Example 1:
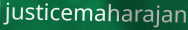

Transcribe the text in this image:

justicemaharajan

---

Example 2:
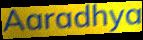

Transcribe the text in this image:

Aaradhya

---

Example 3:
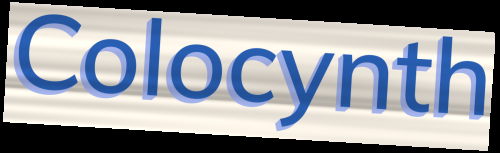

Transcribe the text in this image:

Colocynth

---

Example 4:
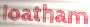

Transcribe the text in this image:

Ioatham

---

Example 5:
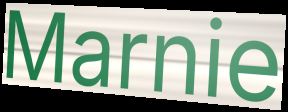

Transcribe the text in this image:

Marnie